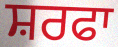
ਸ਼ਰਫਾ